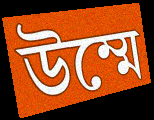
উম্মে